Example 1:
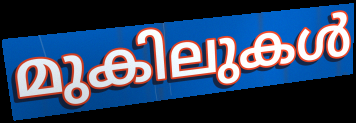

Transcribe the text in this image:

മുകിലുകൾ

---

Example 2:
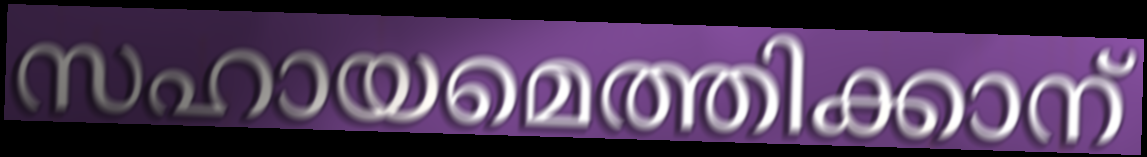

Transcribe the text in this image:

സഹായമെത്തിക്കാന്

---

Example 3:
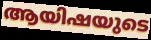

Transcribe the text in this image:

ആയിഷയുടെ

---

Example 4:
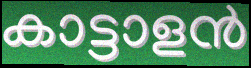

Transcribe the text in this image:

കാട്ടാളൻ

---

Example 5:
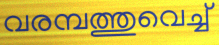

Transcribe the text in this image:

വരമ്പത്തുവെച്ച്